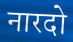
नारदो